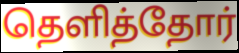
தெளித்தோர்